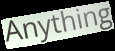
Anything